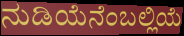
ನುಡಿಯೆನೆಂಬಲ್ಲಿಯೆ